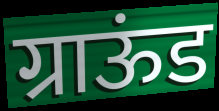
ग्राऊंड